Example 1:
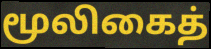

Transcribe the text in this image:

மூலிகைத்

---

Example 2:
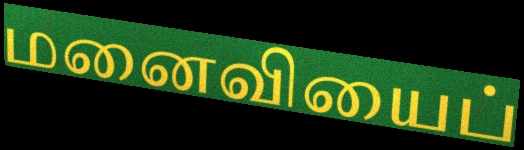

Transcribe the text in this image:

மனைவியைப்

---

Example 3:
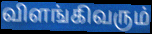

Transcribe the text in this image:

விளங்கிவரும்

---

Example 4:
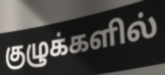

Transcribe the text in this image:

குழுக்களில்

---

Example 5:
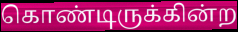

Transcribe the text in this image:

கொண்டிருக்கின்ற